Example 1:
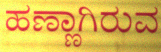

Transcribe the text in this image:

ಹಣ್ಣಾಗಿರುವ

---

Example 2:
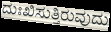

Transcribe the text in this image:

ದುಃಖಿಸುತ್ತಿರುವುದು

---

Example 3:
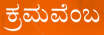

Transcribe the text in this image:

ಕ್ರಮವೆಂಬ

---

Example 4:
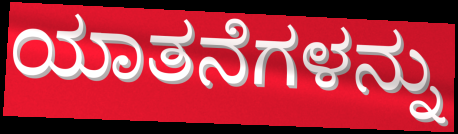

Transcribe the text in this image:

ಯಾತನೆಗಳನ್ನು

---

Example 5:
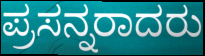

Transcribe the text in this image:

ಪ್ರಸನ್ನರಾದರು